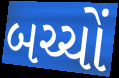
બચ્ચોં